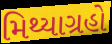
મિથ્યાગ્રહો